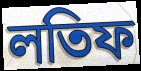
লতিফ